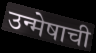
उन्मेषाची